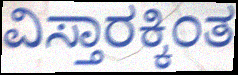
ವಿಸ್ತಾರಕ್ಕಿಂತ